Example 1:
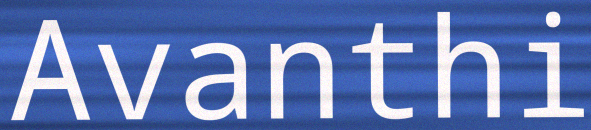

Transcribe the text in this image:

Avanthi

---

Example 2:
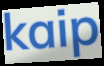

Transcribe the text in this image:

kaip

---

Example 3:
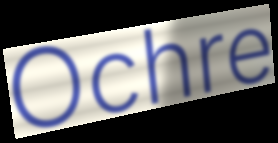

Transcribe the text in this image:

Ochre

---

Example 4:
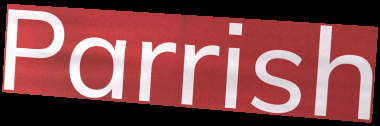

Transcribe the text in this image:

Parrish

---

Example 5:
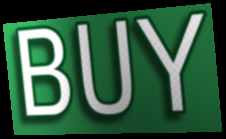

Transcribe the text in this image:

BUY